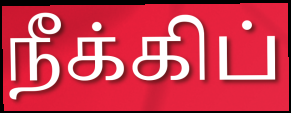
நீக்கிப்